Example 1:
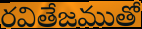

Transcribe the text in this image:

రవితేజముతో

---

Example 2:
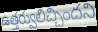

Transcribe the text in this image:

ఉత్తర్వులిచ్చిందని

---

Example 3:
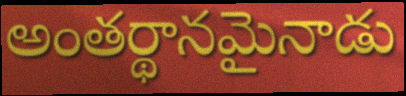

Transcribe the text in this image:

అంతర్థానమైనాడు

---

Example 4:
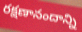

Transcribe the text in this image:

రక్షణానందాన్ని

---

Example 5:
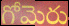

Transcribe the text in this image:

గోమెరు